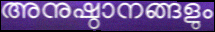
അനുഷ്ഠാനങ്ങളും